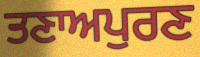
ਤਣਾਅਪੁਰਣ